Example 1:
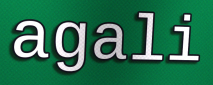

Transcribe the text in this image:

agali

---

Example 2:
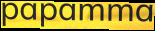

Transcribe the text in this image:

papamma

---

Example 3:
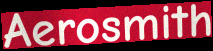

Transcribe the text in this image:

Aerosmith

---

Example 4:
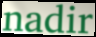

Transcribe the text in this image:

nadir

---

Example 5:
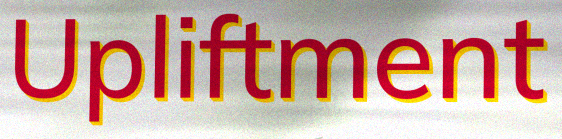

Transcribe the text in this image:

Upliftment